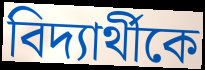
বিদ্যার্থীকে